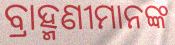
ବ୍ରାହ୍ମଣୀମାନଙ୍କ